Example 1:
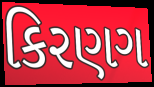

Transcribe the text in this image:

કિરણગ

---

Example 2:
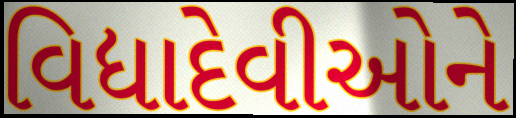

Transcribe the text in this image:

વિદ્યાદેવીઓને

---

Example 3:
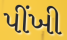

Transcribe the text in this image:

પીંખી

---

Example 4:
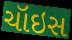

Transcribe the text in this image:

ચૉઇસ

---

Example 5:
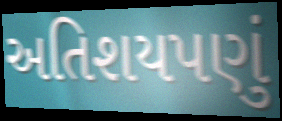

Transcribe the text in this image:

અતિશયપણું